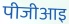
पीजीआइ